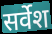
सर्वेश